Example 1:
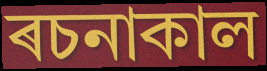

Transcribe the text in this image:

ৰচনাকাল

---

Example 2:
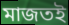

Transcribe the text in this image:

মাজতই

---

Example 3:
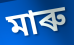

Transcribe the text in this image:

মাৰু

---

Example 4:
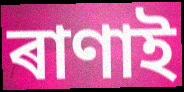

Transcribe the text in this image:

ৰাণাই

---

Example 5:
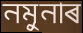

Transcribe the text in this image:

নমুনাৰ